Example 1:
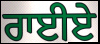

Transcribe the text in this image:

ਰਾਈਏ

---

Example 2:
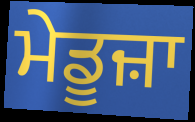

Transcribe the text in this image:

ਮੇਡੂਜ਼ਾ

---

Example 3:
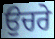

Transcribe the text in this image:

ਉਚਰੇ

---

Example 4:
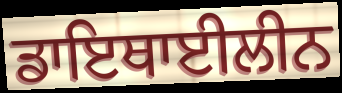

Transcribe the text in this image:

ਡਾਇਥਾਈਲੀਨ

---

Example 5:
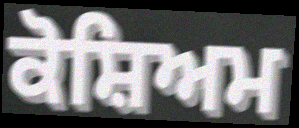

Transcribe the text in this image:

ਕੋਸ਼ਿਅਮ